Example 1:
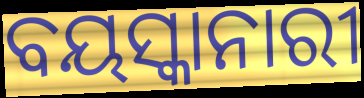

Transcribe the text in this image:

ବୟସ୍କାନାରୀ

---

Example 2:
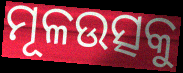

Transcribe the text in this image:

ମୂଳଉତ୍ସକୁ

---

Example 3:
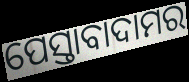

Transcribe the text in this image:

ପେସ୍ତାବାଦାମର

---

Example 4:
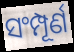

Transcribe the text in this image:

ସଂମ୍ପୂର୍ଣ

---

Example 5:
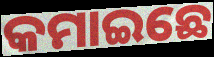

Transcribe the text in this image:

କମାଇଛେ